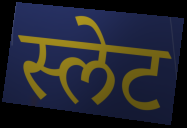
स्लेट